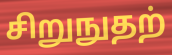
சிறுநுதற்